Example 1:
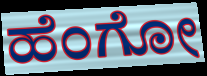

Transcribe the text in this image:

ಹೆಂಗೋ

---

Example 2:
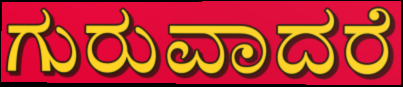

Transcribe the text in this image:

ಗುರುವಾದರೆ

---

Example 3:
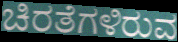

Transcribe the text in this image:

ಚಿರತೆಗಳಿರುವ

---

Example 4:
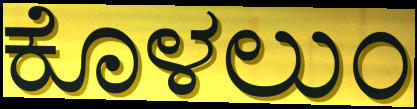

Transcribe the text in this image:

ಕೊಳಲುಂ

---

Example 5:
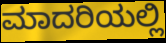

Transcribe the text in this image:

ಮಾದರಿಯಲ್ಲಿ